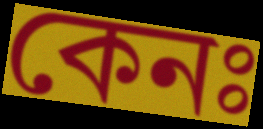
কেনঃ